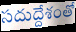
సదుద్దేశంతో